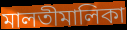
মালতীমালিকা